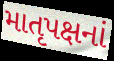
માતૃપક્ષનાં